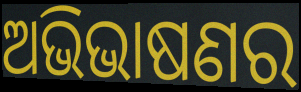
ଅଭିଭାଷଣର